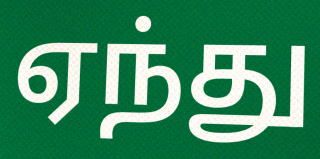
ஏந்து